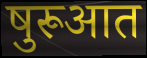
षुरूआत